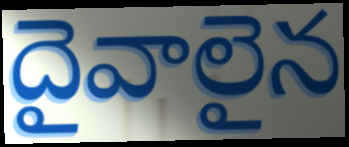
దైవాలైన